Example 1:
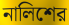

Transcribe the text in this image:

নালিশের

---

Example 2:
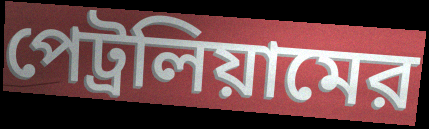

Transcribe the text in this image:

পেট্রলিয়ামের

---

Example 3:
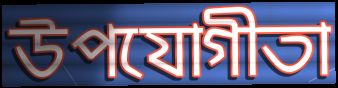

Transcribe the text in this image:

উপযোগীতা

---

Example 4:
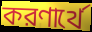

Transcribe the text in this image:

করণার্থে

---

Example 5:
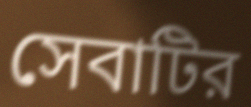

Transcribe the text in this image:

সেবাটির